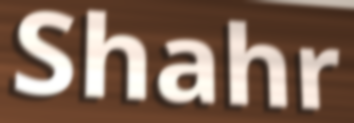
Shahr